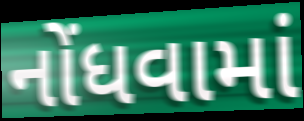
નોંધવામાં